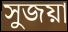
সুজয়া